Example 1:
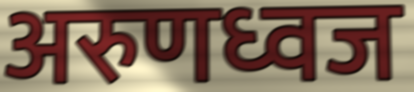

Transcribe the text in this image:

अरुणध्वज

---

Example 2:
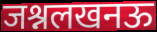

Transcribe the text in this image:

जश्नलखनऊ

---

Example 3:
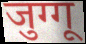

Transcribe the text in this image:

जुग्गू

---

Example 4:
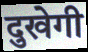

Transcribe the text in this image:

दुखेगी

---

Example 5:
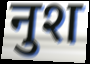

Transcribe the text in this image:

नुश